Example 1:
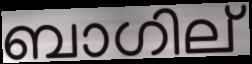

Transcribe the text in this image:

ബാഗില്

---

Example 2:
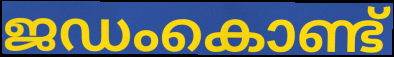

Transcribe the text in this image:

ജഡംകൊണ്ട്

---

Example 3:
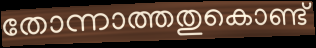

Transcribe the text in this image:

തോന്നാത്തതുകൊണ്ട്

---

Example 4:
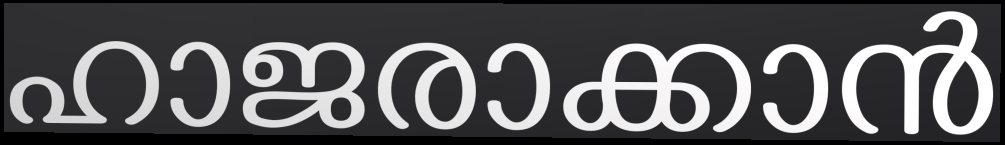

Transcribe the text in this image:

ഹാജരാക്കാൻ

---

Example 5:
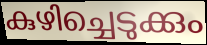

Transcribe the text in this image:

കുഴിച്ചെടുക്കും